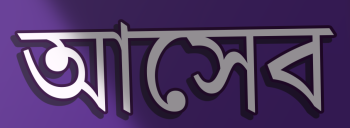
আসেব